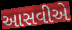
આસવીએ